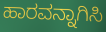
ಹಾರವನ್ನಾಗಿಸಿ